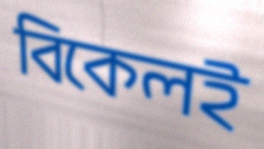
বিকেলই